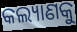
କଲ୍ୟାଣକୁ